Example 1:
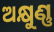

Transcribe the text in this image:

ଅକ୍ଷୁଣ୍ଣ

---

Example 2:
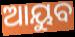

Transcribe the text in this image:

ଆୟୁବ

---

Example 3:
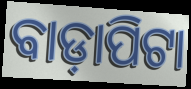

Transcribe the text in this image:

ବାଡ଼ାପିଟା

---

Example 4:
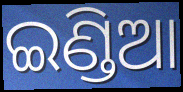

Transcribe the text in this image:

ଇଣ୍ଡିଆ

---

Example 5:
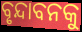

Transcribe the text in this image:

ବୃନ୍ଦାବନକୁ